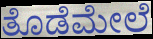
ತೊಡೆಮೇಲೆ